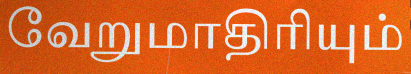
வேறுமாதிரியும்